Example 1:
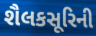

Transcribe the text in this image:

શૈલકસૂરિની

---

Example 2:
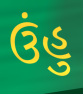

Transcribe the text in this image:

ઉંહુ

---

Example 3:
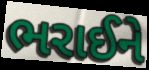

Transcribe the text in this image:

ભરાઈને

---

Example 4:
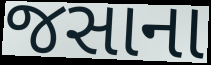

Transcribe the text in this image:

જસાના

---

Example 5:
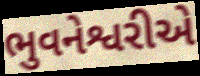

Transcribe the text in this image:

ભુવનેશ્વરીએ